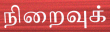
நிறைவுக்